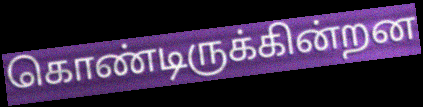
கொண்டிருக்கின்றன